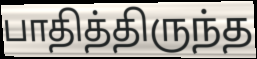
பாதித்திருந்த